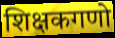
शिक्षकगणो